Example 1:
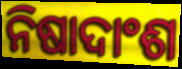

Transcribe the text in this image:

ନିଷାଦାଂଶ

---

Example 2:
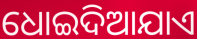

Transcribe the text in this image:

ଧୋଇଦିଆଯାଏ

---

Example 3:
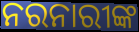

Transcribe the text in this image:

ନରନାରୀଙ୍କ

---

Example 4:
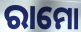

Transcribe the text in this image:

ରାମୋ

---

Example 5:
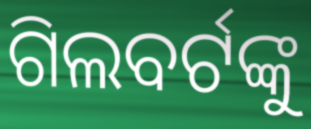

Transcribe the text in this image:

ଗିଲବର୍ଟଙ୍କୁ